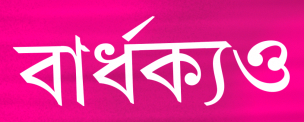
বার্ধক্যও